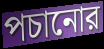
পচানোর